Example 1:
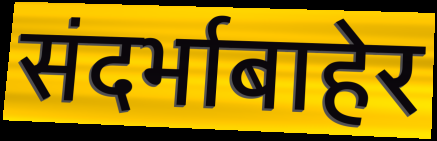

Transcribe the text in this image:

संदर्भाबाहेर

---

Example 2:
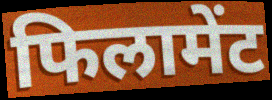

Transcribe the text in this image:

फिलामेंट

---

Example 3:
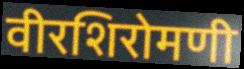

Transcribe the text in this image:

वीरशिरोमणी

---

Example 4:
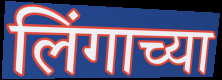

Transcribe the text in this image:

लिंगाच्या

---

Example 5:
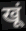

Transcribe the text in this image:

खूं